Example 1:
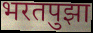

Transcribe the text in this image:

भरतपुझा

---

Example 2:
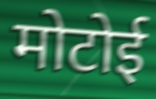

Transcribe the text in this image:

मोटोई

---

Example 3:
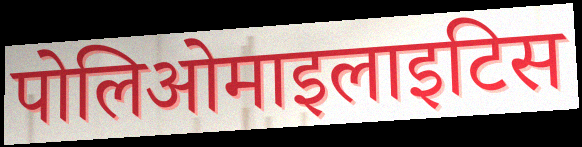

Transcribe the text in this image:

पोलिओमाइलाइटिस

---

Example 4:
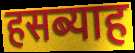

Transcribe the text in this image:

हसब्याह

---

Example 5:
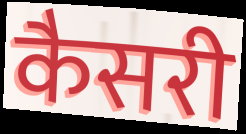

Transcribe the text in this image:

कैसरी